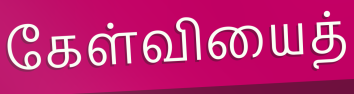
கேள்வியைத்